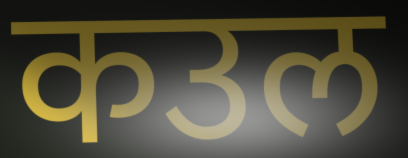
कउल